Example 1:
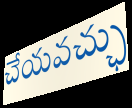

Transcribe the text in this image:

చేయవచ్ఛు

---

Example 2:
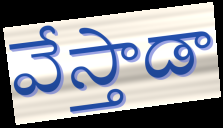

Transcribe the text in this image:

వేస్తాడా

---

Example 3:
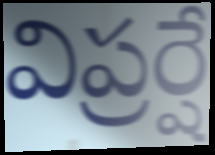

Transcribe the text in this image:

విప్రర్షే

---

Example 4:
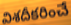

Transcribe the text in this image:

విశదీకరించే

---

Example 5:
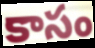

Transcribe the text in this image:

కాసం